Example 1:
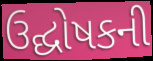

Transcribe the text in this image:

ઉદ્ઘોષકની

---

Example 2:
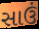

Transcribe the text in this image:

સાઉં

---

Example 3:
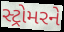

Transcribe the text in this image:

સ્ટ્રોમરને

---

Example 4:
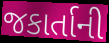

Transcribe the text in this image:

જકાર્તાની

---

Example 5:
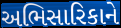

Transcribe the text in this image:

અભિસારિકાને